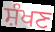
ਸ਼ੰਖਣ